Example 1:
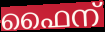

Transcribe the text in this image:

ഫൈന്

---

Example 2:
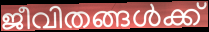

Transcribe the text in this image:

ജീവിതങ്ങൾക്ക്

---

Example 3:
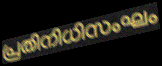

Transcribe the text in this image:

പ്രതിനിധിസംഘം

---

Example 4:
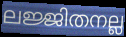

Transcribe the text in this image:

ലജ്ജിതനല്ല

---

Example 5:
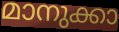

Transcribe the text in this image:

മാനുക്കാ